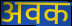
अवक